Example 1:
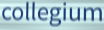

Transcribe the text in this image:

collegium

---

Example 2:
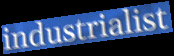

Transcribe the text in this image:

industrialist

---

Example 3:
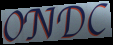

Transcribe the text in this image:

ONDC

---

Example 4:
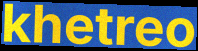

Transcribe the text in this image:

khetreo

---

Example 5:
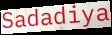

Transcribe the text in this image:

Sadadiya